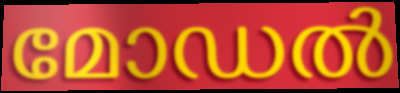
മോഡൽ